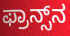
ಫ್ರಾನ್ಸ್‌ನ